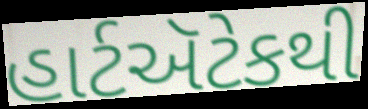
હાર્ટઍટેકથી